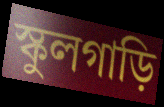
স্কুলগাড়ি